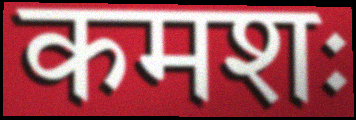
कमशः